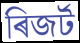
ৰিজৰ্ট